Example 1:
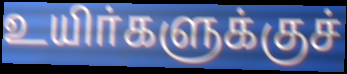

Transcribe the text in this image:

உயிர்களுக்குச்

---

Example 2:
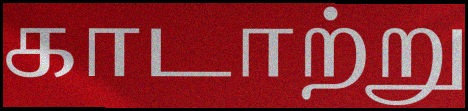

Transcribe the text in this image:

காடாற்று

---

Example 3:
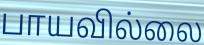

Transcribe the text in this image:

பாயவில்லை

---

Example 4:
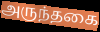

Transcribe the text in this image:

அருந்தகை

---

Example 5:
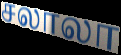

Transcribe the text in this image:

சலாலா